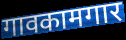
गावकामगार